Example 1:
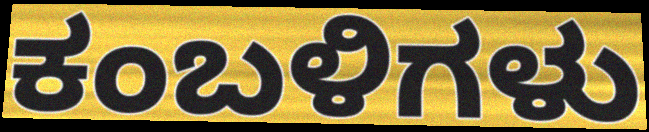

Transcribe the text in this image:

ಕಂಬಳಿಗಳು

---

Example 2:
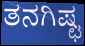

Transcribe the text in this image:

ತನಗಿಷ್ಟ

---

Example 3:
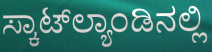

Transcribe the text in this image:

ಸ್ಕಾಟ್‌ಲ್ಯಾಂಡಿನಲ್ಲಿ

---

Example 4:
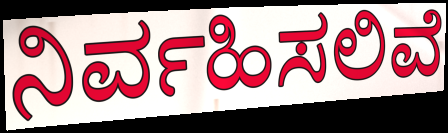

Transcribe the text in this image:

ನಿರ್ವಹಿಸಲಿವೆ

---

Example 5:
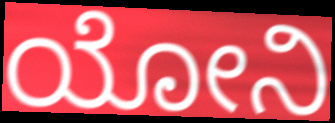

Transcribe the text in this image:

ಯೋನಿ